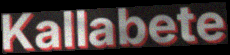
Kallabete